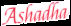
Ashadha